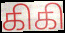
கிகி